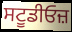
ਸਟੂਡੀਓਜ਼